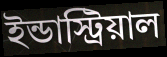
ইন্ডাস্ট্রিয়াল